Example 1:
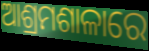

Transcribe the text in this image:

ଆଶ୍ରମଶାଳାରେ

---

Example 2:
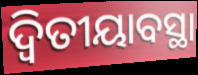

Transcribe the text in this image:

ଦ୍ବିତୀୟାବସ୍ଥା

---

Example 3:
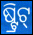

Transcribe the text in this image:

ଷ୍ଟ୍ରିଟ୍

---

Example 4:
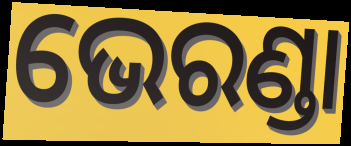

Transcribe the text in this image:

ଭେରଣ୍ଡା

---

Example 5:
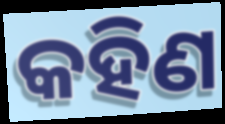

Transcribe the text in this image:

କହିଣ